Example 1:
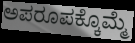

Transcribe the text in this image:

ಅಪರೂಪಕ್ಕೊಮ್ಮೆ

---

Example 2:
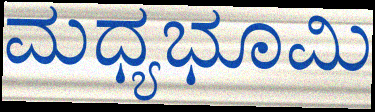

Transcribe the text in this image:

ಮಧ್ಯಭೂಮಿ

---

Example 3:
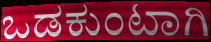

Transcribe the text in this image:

ಒಡಕುಂಟಾಗಿ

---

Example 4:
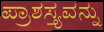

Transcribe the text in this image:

ಪ್ರಾಶಸ್ತ್ಯವನ್ನು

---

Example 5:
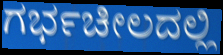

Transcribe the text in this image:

ಗರ್ಭಚೀಲದಲ್ಲಿ